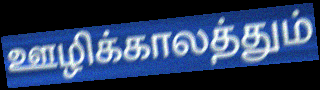
ஊழிக்காலத்தும்